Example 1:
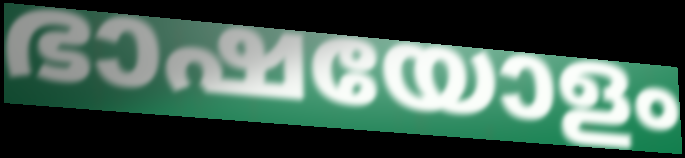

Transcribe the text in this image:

ഭാഷയോളം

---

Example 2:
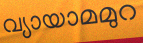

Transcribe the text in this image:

വ്യായാമമുറ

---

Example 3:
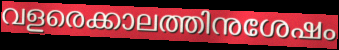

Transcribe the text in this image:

വളരെക്കാലത്തിനുശേഷം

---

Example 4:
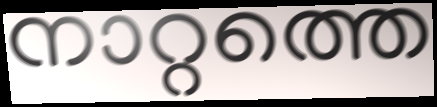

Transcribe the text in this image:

നാറ്റത്തെ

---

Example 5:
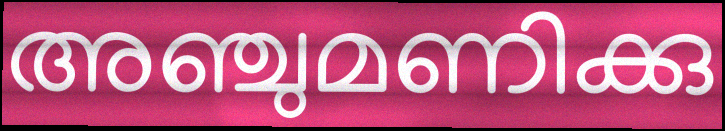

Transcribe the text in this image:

അഞ്ചുമണിക്കു